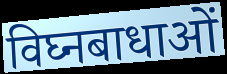
विघ्नबाधाओं